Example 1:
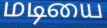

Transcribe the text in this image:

மடியை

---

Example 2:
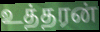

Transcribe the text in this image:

உத்தரன்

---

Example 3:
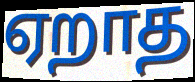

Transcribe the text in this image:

ஏறாத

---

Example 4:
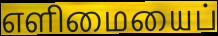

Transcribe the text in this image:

எளிமையைப்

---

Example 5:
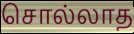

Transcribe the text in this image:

சொல்லாத